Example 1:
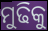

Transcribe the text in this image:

ମୁଢିକୁ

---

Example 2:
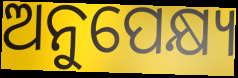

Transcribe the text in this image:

ଅନୁପେକ୍ଷ୍ୟ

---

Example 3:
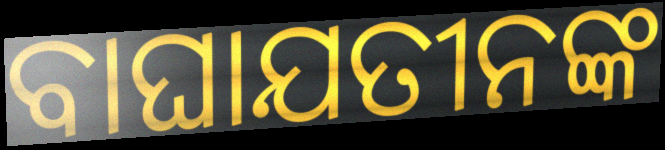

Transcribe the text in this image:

ବାଘାଯତୀନଙ୍କ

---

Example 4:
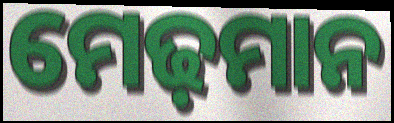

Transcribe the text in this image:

ମେଢ଼ମାନ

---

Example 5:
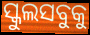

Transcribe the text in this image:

ସ୍କୁଲସବୁକୁ